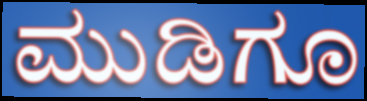
ಮುಡಿಗೂ